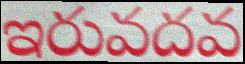
ఇరువదవ